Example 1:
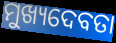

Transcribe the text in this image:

ମୁଖ୍ୟଦେବତା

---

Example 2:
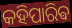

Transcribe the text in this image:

କହିପାରିଵ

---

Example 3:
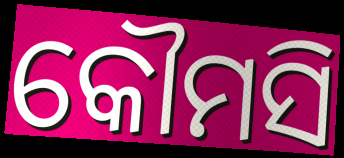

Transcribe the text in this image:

କୌମସି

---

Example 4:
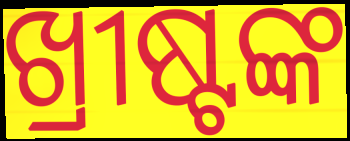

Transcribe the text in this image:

ଖ୍ରୀଷ୍ଟଙ୍କ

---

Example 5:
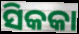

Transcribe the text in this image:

ସିକକା